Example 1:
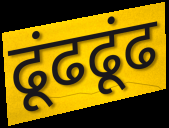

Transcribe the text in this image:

ढूंढढूंढ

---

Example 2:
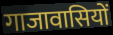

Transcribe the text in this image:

गाजावासियों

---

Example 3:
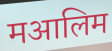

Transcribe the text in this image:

मआलिम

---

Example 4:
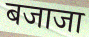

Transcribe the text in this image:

बजाजा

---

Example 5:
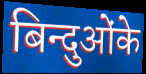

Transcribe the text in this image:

बिन्दुओंके